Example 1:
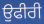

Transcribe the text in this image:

ਉਫੀਰੀ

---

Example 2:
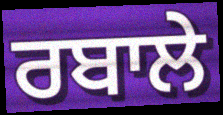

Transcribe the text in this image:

ਰਬਾਲੇ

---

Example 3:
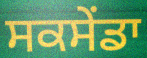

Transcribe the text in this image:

ਸਕਸੇਂਡਾ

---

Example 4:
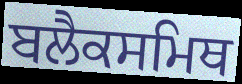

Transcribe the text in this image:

ਬਲੈਕਸਮਿਥ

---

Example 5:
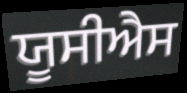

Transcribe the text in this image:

ਯੂਸੀਐਸ